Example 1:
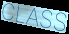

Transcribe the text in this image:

CLASS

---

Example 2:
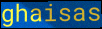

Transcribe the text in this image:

ghaisas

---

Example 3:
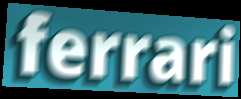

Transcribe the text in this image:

ferrari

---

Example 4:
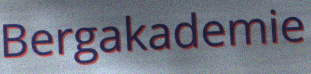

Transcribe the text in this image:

Bergakademie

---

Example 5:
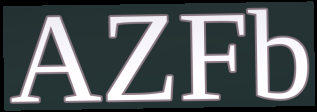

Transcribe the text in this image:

AZFb